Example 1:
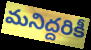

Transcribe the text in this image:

మనిద్దరికీ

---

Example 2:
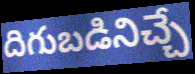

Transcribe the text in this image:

దిగుబడినిచ్చే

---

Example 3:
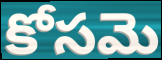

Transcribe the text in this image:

కోసమె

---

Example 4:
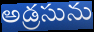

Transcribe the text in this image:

అడ్రసును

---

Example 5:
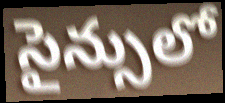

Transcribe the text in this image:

సైన్సులో